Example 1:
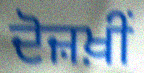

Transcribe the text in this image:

ਦੋਜ਼ਖ਼ੀਂ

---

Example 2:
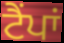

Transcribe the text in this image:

ਟੈਂਪਾਂ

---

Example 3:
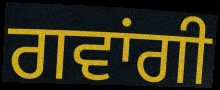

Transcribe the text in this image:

ਗਵਾਂਗੀ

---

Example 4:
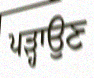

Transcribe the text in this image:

ਪੜ੍ਹਾਉਣ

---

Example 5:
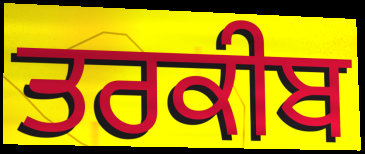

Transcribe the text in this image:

ਤਰਕੀਬ